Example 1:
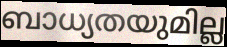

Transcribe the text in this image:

ബാധ്യതയുമില്ല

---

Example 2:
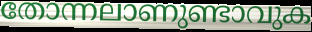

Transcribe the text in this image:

തോന്നലാണുണ്ടാവുക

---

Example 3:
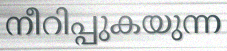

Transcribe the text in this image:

നീറിപ്പുകയുന്ന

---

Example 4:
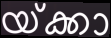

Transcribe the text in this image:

യ്‌ക്കാ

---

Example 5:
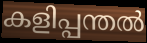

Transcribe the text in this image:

കളിപ്പന്തൽ